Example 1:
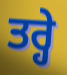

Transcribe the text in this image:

ਤਰ੍ਹੇ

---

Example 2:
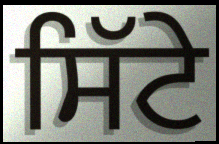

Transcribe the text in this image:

ਸਿੱਟੇ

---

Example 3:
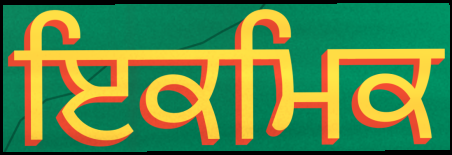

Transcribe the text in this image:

ਇਕਮਿਕ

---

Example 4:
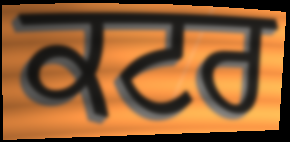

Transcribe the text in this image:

ਕਟਰ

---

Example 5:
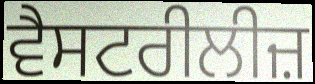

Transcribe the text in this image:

ਵੈਸਟਰੀਲੀਜ਼